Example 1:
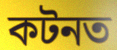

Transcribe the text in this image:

কটনত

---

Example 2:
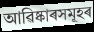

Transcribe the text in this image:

আৱিষ্কাৰসমূহৰ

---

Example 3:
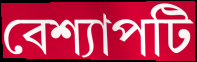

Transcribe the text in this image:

বেশ্যাপটি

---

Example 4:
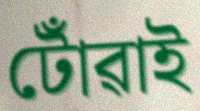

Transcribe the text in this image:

টোঁৱাই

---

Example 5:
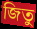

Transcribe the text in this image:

জিতু